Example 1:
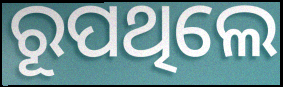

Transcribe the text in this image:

ରୂପଥିଲେ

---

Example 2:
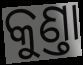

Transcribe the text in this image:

କୁଣ୍ତା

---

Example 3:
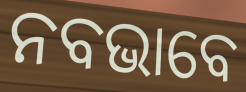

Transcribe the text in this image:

ନବଭାବେ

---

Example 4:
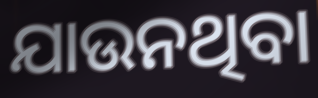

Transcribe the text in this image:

ଯାଉନଥିବା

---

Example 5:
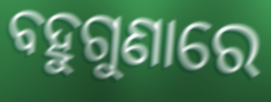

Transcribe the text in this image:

ବହୁଗୁଣାରେ